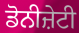
ਡੋਨੀਜ਼ੇਟੀ